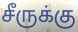
சீருக்கு